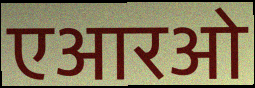
एआरओ